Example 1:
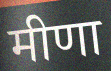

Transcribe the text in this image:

मीणा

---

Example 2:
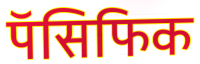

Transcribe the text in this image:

पॅसिफिक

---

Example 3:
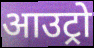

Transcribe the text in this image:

आउट्रो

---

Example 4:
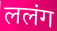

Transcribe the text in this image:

ललंग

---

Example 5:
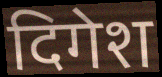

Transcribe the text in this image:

दिगेश